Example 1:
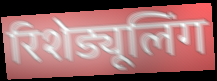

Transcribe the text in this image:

रिशेड्यूलिंग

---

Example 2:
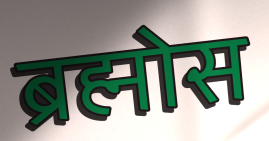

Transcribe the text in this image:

ब्रह्मोस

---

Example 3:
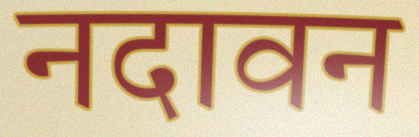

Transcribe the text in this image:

नदावन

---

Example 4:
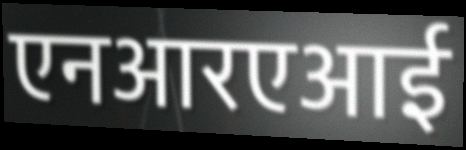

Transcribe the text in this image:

एनआरएआई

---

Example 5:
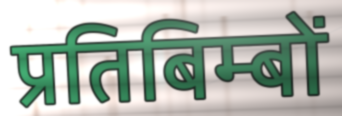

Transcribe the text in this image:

प्रतिबिम्बों